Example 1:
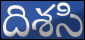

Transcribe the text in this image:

దిశసి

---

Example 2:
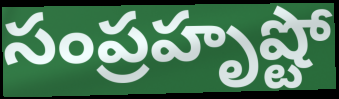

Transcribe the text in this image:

సంప్రహృష్టో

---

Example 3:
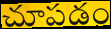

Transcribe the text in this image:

చూపడం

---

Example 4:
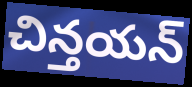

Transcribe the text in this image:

చిన్తయన్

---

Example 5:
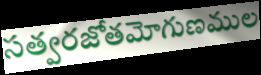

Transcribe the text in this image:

సత్వరజోతమోగుణముల